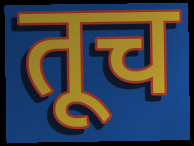
तूच